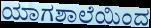
ಯಾಗಶಾಲೆಯಿಂದ